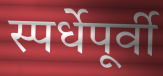
स्पर्धेपूर्वी